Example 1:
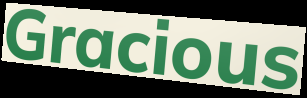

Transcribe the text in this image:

Gracious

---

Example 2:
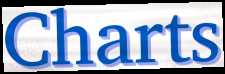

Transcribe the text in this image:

Charts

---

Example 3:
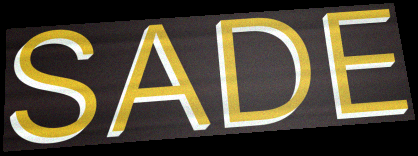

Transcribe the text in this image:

SADE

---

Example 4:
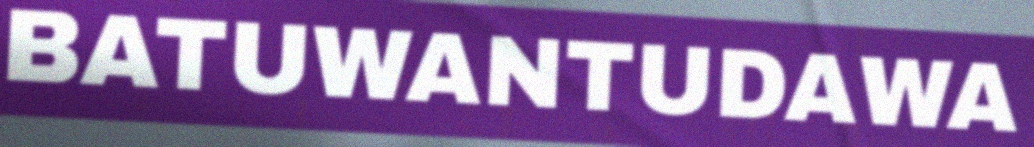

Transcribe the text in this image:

BATUWANTUDAWA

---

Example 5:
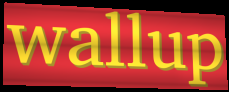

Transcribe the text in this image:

wallup